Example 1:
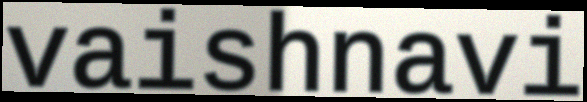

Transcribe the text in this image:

vaishnavi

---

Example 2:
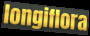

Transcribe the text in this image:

longiflora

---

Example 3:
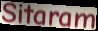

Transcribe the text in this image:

Sitaram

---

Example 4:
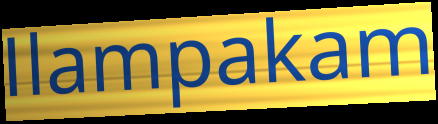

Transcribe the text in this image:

Ilampakam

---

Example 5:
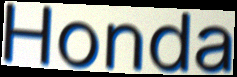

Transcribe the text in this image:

Honda